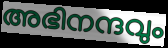
അഭിനന്ദവും